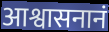
आश्वासनानं